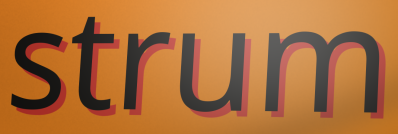
strum